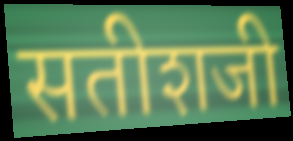
सतीशजी